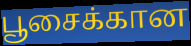
பூசைக்கான